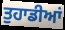
ਤੁਹਾਡੀਆਂ